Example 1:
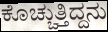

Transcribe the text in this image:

ಕೊಚ್ಚುತ್ತಿದ್ದನು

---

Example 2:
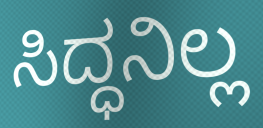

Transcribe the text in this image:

ಸಿದ್ಧನಿಲ್ಲ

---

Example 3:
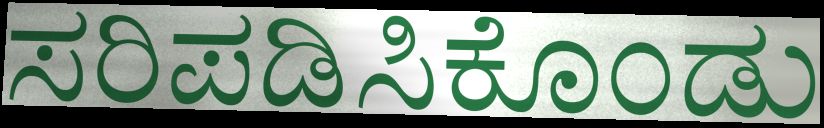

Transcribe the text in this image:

ಸರಿಪಡಿಸಿಕೊಂಡು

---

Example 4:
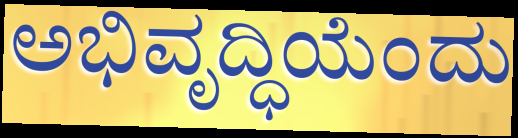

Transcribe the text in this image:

ಅಭಿವೃದ್ಧಿಯೆಂದು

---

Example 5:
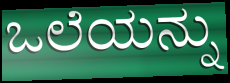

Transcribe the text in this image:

ಒಲೆಯನ್ನು